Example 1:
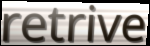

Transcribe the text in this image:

retrive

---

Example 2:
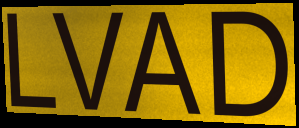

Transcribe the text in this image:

LVAD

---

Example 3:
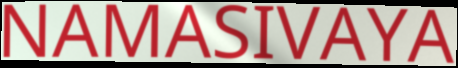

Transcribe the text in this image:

NAMASIVAYA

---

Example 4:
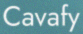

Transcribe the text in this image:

Cavafy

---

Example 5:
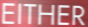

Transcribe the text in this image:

EITHER